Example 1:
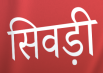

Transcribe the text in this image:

सिवड़ी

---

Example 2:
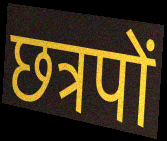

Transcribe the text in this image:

छत्रपों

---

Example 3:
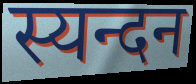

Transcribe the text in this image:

स्यन्दन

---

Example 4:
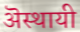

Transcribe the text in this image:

ऄस्थायी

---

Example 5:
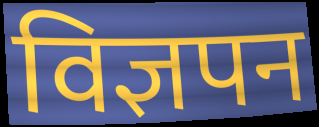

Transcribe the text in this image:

विज्ञपन